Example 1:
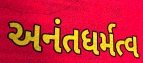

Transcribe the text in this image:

અનંતધર્મત્વ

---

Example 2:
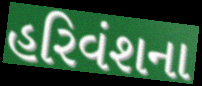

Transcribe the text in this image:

હરિવંશના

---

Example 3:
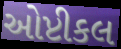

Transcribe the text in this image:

ઓપ્ટીકલ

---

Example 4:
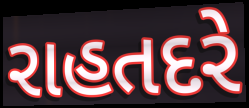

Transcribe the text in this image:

રાહતદરે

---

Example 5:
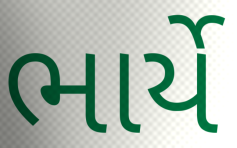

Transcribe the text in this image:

ભાર્યે